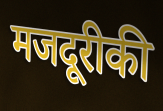
मजदूरीकी